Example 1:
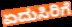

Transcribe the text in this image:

ಏದುಸಿರಿಗೆ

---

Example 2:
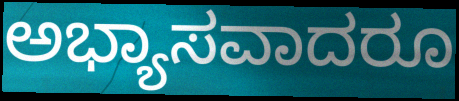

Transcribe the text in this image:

ಅಭ್ಯಾಸವಾದರೂ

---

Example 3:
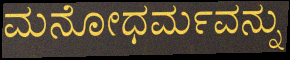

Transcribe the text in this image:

ಮನೋಧರ್ಮವನ್ನು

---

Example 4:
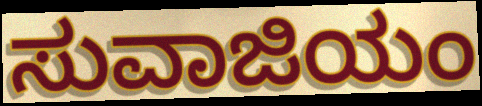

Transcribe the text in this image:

ಸುವಾಜಿಯಂ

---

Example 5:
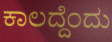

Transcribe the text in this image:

ಕಾಲದ್ದೆಂದು